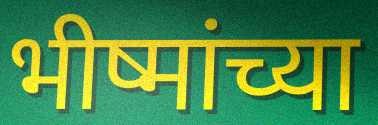
भीष्मांच्या